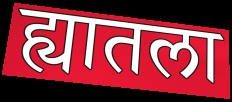
ह्यातला